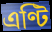
এণ্টি